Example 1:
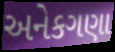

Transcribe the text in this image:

અનેકગણા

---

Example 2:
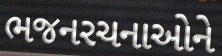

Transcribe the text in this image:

ભજનરચનાઓને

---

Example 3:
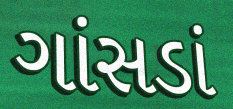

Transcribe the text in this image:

ગાંસડાં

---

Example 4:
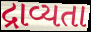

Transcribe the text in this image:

દ્રાવ્યતા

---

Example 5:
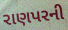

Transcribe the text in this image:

રાણપરની